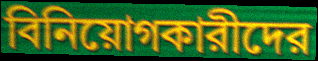
বিনিয়োগকারীদের